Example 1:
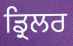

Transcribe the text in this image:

ਡ੍ਰਿਲਰ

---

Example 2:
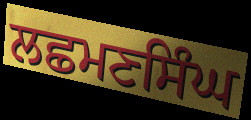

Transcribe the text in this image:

ਲਛਮਣਸਿੰਘ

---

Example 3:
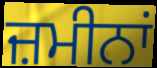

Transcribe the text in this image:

ਜ਼ਮੀਨਾਂ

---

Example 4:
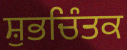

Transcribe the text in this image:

ਸ਼ੁਭਚਿੰਤਕ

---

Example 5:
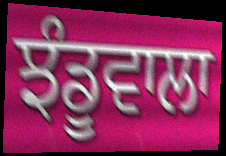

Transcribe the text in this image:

ਝੰਡੂਵਾਲਾ